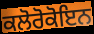
ਕਲੋਰੋਕੋਇਨ